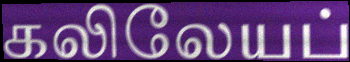
கலிலேயப்